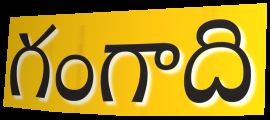
గంగాది